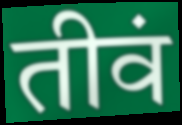
तीवं